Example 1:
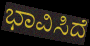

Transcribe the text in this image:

ಭಾವಿಸಿದೆ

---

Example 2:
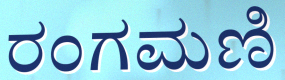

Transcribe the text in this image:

ರಂಗಮಣಿ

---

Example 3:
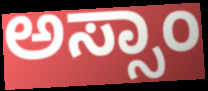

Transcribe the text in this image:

ಅಸ್ಸಾಂ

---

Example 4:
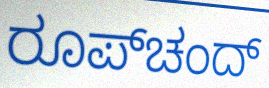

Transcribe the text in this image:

ರೂಪ್‌ಚಂದ್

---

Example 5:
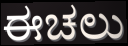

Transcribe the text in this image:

ಈಚಲು